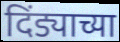
दिंड्याच्या